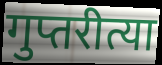
गुप्तरीत्या